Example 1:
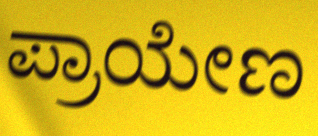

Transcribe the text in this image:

ಪ್ರಾಯೇಣ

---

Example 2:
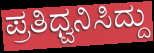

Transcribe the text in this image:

ಪ್ರತಿಧ್ವನಿಸಿದ್ದು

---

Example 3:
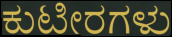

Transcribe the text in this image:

ಕುಟೀರಗಳು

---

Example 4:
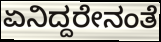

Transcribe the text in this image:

ಏನಿದ್ದರೇನಂತೆ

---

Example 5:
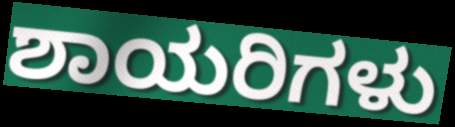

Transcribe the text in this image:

ಶಾಯರಿಗಳು